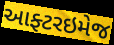
આફ્ટરઇમેજ